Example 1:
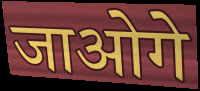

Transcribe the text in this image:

जाओगे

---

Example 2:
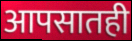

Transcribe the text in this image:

आपसातही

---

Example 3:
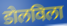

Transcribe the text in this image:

डोलविला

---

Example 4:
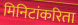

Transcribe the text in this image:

मिनिटांकरिता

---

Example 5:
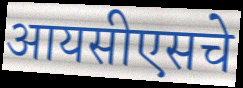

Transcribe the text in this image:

आयसीएसचे